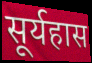
सूर्यहास